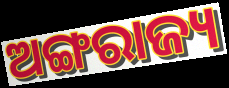
ଅଙ୍ଗରାଜ୍ୟ